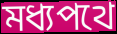
মধ্যপথে